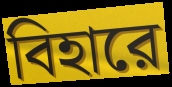
বিহারে